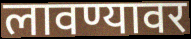
लावण्यावर